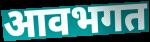
आवभगत